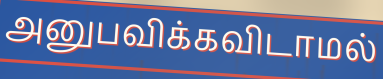
அனுபவிக்கவிடாமல்